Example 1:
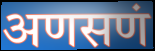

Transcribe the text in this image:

अणसणं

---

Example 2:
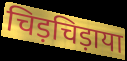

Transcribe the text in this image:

चिड़चिड़ाया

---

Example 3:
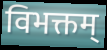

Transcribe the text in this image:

विभक्तम्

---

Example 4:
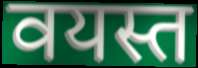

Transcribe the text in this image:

वयस्त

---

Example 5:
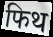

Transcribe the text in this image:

फिथ